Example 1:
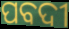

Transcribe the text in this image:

ପବଦୀ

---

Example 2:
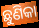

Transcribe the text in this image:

ଛୁଣିକା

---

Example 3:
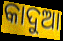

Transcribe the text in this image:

କାଦୁଆ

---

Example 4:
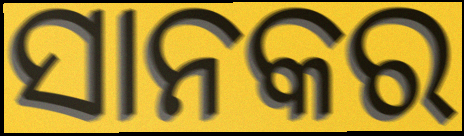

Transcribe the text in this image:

ସାନକର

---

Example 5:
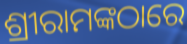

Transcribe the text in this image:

ଶ୍ରୀରାମଙ୍କଠାରେ